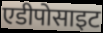
एडीपोसाइट